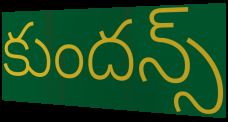
కుందన్స్